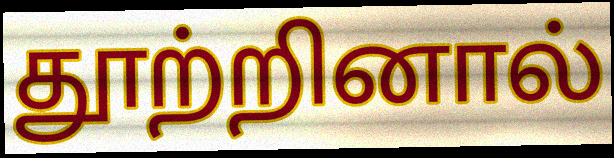
தூற்றினால்